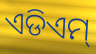
ଏଡିଏମ୍